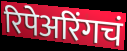
रिपेअरिंगचं